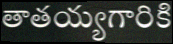
తాతయ్యగారికి